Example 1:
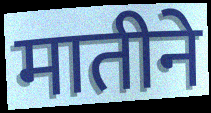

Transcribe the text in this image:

मातीने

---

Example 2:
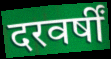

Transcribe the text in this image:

दरवर्षीं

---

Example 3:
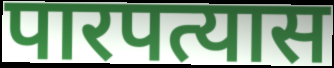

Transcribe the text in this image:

पारपत्यास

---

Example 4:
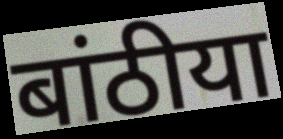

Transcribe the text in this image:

बांठीया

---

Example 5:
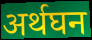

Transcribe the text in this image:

अर्थघन